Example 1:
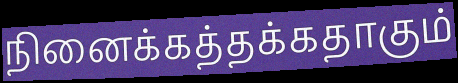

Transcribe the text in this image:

நினைக்கத்தக்கதாகும்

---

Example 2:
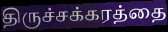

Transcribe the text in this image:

திருச்சக்கரத்தை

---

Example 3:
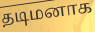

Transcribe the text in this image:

தடிமனாக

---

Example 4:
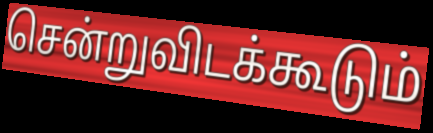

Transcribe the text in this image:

சென்றுவிடக்கூடும்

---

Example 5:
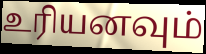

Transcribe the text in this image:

உரியனவும்